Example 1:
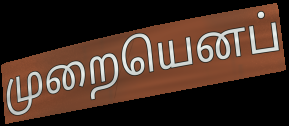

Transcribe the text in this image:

முறையெனப்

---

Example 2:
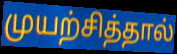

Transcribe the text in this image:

முயற்சித்தால்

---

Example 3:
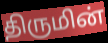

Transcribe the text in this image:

திருமின்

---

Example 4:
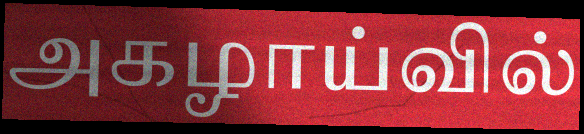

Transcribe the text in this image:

அகழாய்வில்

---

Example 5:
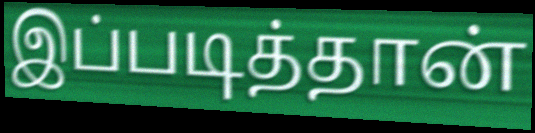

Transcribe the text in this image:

இப்படித்தான்